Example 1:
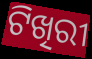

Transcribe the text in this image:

ଟିଖିରୀ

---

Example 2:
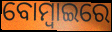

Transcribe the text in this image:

ବୋମ୍ୱାଇରେ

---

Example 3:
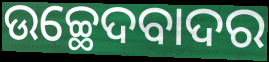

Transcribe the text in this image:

ଉଚ୍ଛେଦବାଦର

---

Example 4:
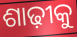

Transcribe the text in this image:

ଶାଢ଼ୀକୁ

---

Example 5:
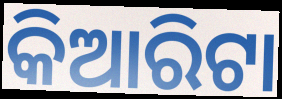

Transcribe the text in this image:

କିଆରିଟା